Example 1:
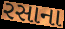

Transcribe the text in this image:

રસાના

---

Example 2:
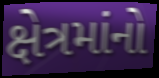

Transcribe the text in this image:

ક્ષેત્રમાંનો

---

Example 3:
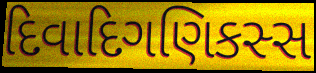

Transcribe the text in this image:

દિવાદિગણિકસ્સ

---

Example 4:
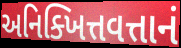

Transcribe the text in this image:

અનિક્ખિત્તવત્તાનં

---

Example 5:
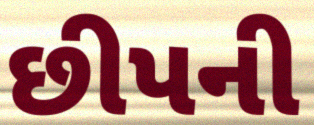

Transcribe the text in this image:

છીપની